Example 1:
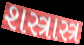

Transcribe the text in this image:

શસ્ત્રાસ્ત્ર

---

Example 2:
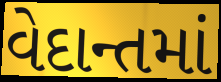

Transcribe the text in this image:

વેદાન્તમાં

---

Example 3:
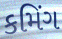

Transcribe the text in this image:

કમિંગ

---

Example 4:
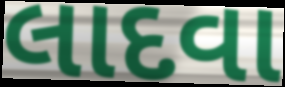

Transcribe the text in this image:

લાદવા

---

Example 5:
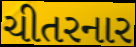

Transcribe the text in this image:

ચીતરનાર